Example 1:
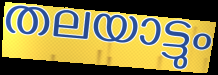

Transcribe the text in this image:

തലയാട്ടും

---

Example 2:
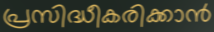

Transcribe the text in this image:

പ്രസിദ്ധീകരിക്കാൻ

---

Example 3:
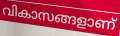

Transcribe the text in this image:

വികാസങ്ങളാണ്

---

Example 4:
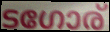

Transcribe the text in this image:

ടഗോര്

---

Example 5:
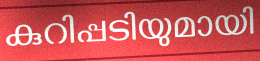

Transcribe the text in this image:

കുറിപ്പടിയുമായി